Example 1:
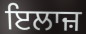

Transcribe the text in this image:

ਇਲਾਜ਼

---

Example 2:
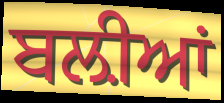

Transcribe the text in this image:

ਬਲ਼ੀਆਂ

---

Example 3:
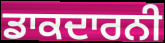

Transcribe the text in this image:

ਡਾਕਦਾਰਨੀ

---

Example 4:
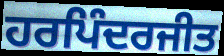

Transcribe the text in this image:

ਹਰਪਿੰਦਰਜੀਤ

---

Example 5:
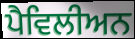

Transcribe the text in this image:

ਪੈਵਿਲੀਅਨ